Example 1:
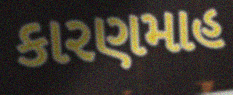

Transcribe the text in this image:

કારણમાહ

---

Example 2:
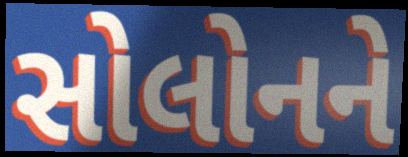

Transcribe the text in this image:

સોલોનને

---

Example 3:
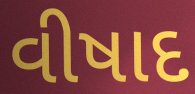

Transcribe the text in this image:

વીષાદ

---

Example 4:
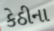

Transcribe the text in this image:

કેઠીના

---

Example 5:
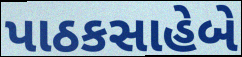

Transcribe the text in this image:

પાઠકસાહેબે